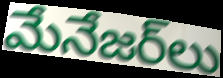
మేనేజర్‌లు